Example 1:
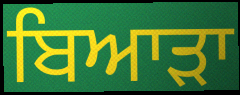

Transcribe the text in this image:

ਬਿਆੜਾ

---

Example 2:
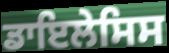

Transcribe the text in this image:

ਡਾਇਲੇਸਿਸ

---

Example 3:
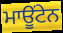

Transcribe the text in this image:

ਮਾਊਂਟੇਨ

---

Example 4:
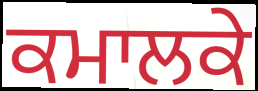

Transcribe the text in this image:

ਕਮਾਲਕੇ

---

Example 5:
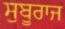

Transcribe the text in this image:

ਸੁਬੂਰਾਜ